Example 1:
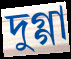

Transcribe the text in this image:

দুগ্গা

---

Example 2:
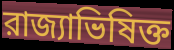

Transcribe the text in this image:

রাজ্যাভিষিক্ত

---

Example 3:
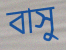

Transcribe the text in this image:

বাসু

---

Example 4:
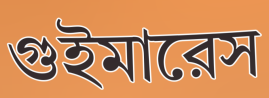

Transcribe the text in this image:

গুইমারেস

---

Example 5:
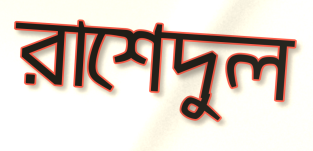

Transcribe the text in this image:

রাশেদুল